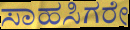
ಸಾಹಸಿಗರೇ